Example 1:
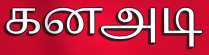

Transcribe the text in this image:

கனஅடி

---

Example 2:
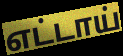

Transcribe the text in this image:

எட்டாய்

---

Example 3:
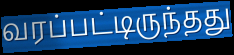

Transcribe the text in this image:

வரப்பட்டிருந்தது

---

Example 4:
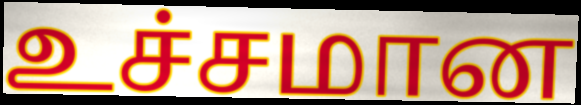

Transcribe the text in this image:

உச்சமான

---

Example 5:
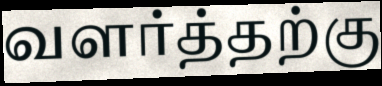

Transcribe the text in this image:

வளர்த்தற்கு